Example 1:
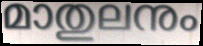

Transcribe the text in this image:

മാതുലനും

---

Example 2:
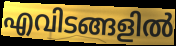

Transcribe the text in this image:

എവിടങ്ങളിൽ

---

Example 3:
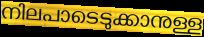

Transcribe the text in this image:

നിലപാടെടുക്കാനുള്ള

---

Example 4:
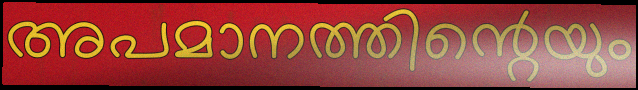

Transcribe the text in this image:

അപമാനത്തിന്റെയും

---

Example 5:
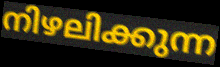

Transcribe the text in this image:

നിഴലിക്കുന്ന